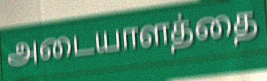
அடையாளத்தை